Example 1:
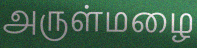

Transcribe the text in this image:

அருள்மழை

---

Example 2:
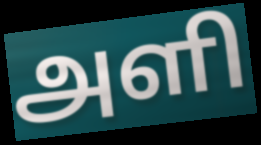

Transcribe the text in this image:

அளி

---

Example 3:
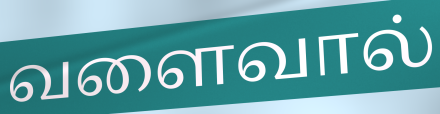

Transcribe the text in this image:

வளைவால்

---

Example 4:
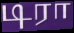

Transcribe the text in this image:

டிரா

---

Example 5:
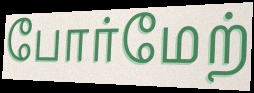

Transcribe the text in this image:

போர்மேற்